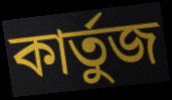
কার্তুজ